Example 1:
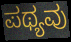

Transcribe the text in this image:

ಪಥ್ಯವು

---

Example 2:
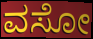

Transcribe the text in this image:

ವಸೋ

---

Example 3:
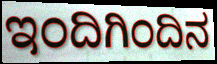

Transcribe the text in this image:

ಇಂದಿಗಿಂದಿನ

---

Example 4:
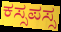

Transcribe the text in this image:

ಕಸ್ಸಪಸ್ಸ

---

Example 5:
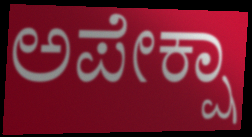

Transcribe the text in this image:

ಅಪೇಕ್ಷಾ